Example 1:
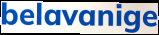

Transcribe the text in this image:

belavanige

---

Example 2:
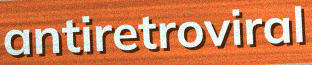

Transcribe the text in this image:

antiretroviral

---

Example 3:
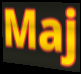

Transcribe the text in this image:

Maj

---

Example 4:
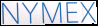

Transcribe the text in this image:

NYMEX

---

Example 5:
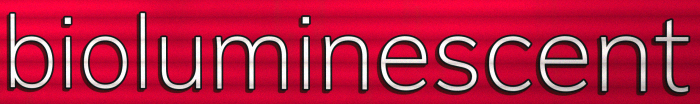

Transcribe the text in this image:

bioluminescent